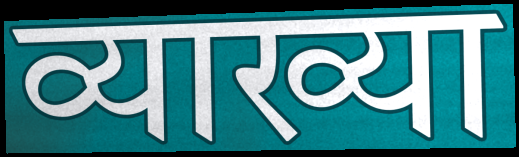
व्याख्‍या